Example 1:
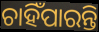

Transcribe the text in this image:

ଚାହିଁପାରନ୍ତି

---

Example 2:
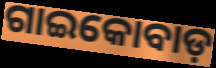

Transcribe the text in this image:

ଗାଇକୋବାଡ଼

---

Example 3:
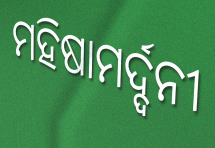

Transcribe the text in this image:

ମହିଷାମର୍ଦ୍ଦନୀ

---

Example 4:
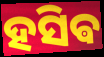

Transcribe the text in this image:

ହସିଵ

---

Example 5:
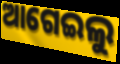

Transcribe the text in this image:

ଆଗେଇଲୁ